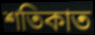
শতিকাত